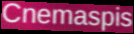
Cnemaspis